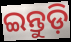
ଇନ୍ତୁଡ଼ି